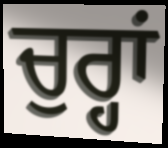
ਚੁਰ੍ਹਾਂ